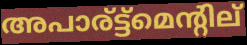
അപാര്ട്ട്മെന്റില്